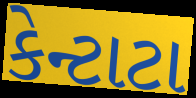
કેન્ટાટા